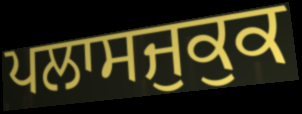
ਪਲਾਸਜੁਕੁਕ